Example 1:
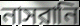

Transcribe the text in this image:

নাসরানি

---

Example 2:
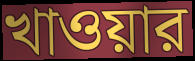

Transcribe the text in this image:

খাওয়ার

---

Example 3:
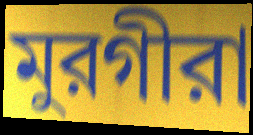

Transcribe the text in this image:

মুরগীরা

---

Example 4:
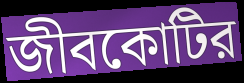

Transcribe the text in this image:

জীবকোটির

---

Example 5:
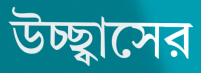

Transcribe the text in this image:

উচ্ছ্বাসের